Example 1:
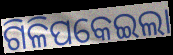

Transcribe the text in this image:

ଗିଳିପକେଇଲା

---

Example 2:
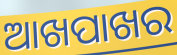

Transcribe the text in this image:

ଆଖପାଖର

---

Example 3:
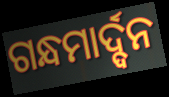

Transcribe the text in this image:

ଗନ୍ଧମାର୍ଦ୍ଦନ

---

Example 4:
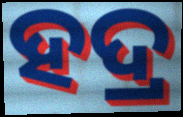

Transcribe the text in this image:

ହଦ୍ର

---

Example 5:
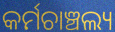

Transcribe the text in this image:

କର୍ମଚାଞ୍ଚଲ୍ୟ